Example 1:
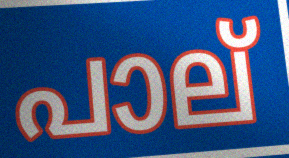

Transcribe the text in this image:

പാല്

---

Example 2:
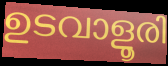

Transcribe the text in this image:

ഉടവാളൂരി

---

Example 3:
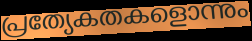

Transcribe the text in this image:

പ്രത്യേകതകളൊന്നും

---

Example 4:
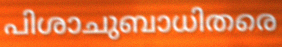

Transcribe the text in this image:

പിശാചുബാധിതരെ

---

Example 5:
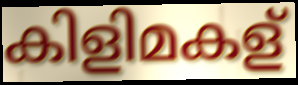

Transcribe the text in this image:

കിളിമകള്